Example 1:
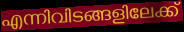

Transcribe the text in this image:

എന്നിവിടങ്ങളിലേക്ക്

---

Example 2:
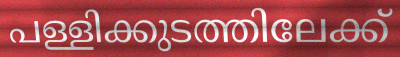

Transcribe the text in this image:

പള്ളിക്കുടത്തിലേക്ക്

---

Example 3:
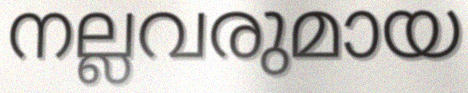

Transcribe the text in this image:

നല്ലവരുമായ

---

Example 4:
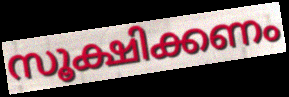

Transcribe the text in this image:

സൂക്ഷിക്കണം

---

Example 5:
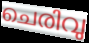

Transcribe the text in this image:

ചെരിവു